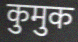
कुमुक